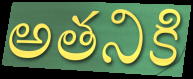
అతనికి